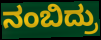
ನಂಬಿದ್ರು